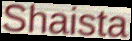
Shaista